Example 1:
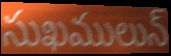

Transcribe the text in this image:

సుఖములున్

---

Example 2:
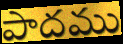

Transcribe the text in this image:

పాదము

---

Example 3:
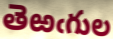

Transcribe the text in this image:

తెఱఁగుల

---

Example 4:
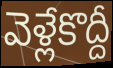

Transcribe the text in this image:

వెళ్లేకొద్దీ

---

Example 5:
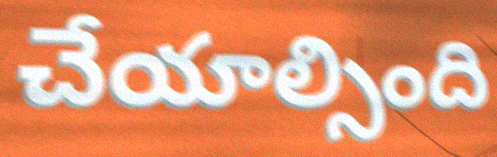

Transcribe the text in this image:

చేయాల్సింది